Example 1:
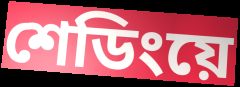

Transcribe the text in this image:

শেডিংয়ে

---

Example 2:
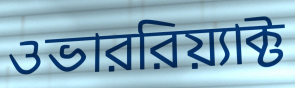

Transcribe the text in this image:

ওভাররিয়্যাক্ট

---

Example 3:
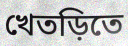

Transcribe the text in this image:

খেতড়িতে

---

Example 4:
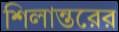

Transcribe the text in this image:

শিলান্তরের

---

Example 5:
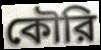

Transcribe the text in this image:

কৌরি